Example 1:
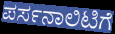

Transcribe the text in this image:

ಪರ್ಸನಾಲಿಟಿಗೆ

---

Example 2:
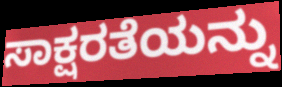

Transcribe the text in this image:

ಸಾಕ್ಷರತೆಯನ್ನು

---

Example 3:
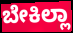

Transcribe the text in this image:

ಬೇಕಿಲ್ಲಾ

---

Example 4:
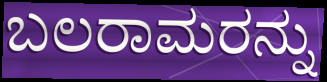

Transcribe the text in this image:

ಬಲರಾಮರನ್ನು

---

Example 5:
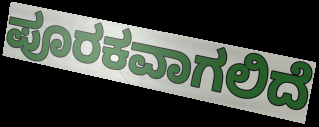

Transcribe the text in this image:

ಪೂರಕವಾಗಲಿದೆ